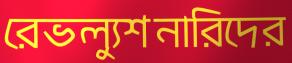
রেভল্যুশনারিদের